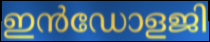
ഇൻഡോളജി